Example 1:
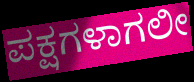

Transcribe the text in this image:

ಪಕ್ಷಗಳಾಗಲೀ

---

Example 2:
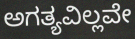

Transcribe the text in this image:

ಅಗತ್ಯವಿಲ್ಲವೇ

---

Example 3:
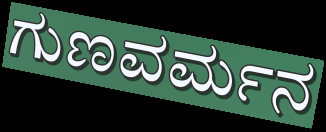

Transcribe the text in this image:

ಗುಣವರ್ಮನ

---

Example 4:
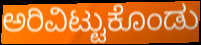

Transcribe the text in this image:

ಅರಿವಿಟ್ಟುಕೊಂಡು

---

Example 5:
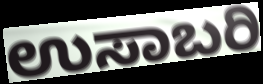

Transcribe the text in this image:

ಉಸಾಬರಿ